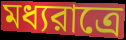
মধ্যরাত্রে